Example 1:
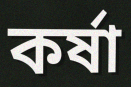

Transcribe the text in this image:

কর্ষা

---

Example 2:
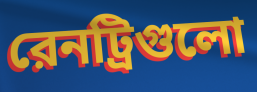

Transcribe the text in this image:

রেনট্রিগুলো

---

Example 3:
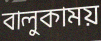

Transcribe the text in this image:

বালুকাময়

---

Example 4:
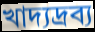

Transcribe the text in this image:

খাদ্যদ্রব্য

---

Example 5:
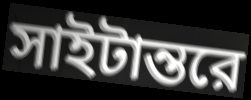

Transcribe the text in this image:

সাইটান্তরে